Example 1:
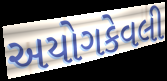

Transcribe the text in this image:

અયોગકેવલી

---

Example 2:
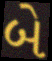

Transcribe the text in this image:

બે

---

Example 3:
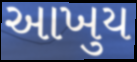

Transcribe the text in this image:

આખુય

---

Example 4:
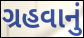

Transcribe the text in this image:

ગ્રહવાનું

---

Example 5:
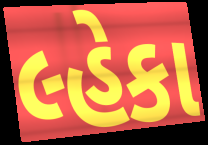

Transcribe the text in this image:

લ્હેકા